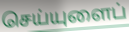
செய்யுளைப்